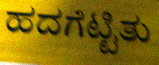
ಹದಗೆಟ್ಟಿತು